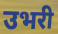
उभरी